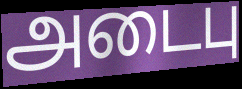
அடைபு